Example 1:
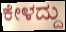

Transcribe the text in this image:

ಕೇಳದ್ದು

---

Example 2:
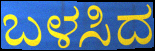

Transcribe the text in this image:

ಬಳಸಿದ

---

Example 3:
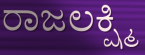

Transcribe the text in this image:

ರಾಜಲಕ್ಷ್ಮಿ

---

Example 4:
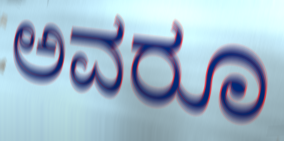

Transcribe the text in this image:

ಅವರೂ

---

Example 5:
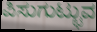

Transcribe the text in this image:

ಪಿಸುಗುಟ್ಟುವ